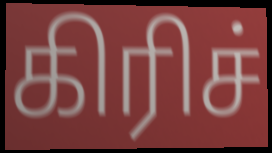
கிரிச்